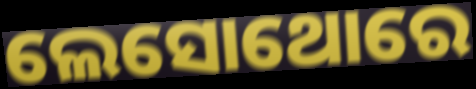
ଲେସୋଥୋରେ